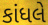
કાંધલે